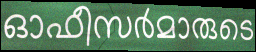
ഓഫീസർമാരുടെ